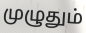
முழுதும்